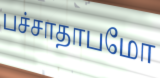
பச்சாதாபமோ